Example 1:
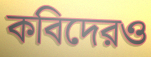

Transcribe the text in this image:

কবিদেরও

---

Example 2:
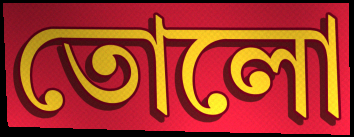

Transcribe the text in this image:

তোলো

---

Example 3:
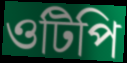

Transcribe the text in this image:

ওটিপি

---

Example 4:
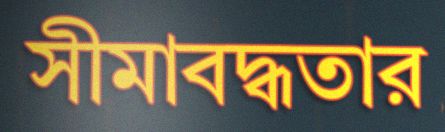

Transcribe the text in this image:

সীমাবদ্ধতার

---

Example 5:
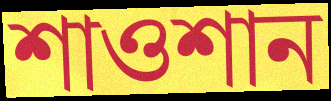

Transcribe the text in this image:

শাওশান